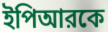
ইপিআরকে